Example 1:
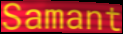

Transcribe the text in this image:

Samant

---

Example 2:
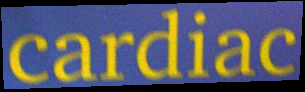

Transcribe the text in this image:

cardiac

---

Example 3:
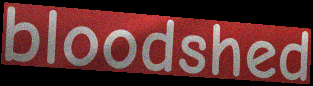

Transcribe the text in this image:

bloodshed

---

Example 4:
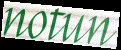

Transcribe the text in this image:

notun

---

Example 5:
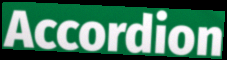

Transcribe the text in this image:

Accordion